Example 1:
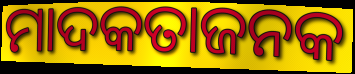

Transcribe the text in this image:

ମାଦକତାଜନକ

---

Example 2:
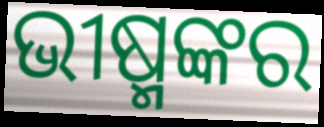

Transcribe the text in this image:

ଭୀଷ୍ମଙ୍କର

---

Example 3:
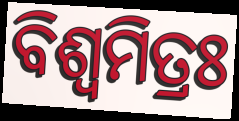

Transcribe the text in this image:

ବିଶ୍ବମିତ୍ରଃ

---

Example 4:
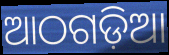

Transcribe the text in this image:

ଆଠଗଡ଼ିଆ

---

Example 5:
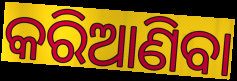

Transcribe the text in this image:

କରିଆଣିବା